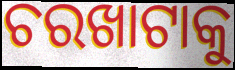
ଚରଖାଟାକୁ